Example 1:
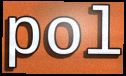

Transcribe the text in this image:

pol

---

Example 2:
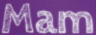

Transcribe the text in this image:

Mam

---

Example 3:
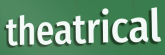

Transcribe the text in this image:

theatrical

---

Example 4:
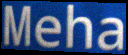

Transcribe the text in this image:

Meha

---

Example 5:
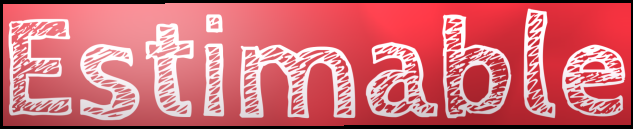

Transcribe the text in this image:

Estimable